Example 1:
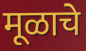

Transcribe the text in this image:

मूळाचे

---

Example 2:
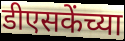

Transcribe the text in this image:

डीएसकेंच्या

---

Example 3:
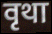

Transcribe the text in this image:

वृथा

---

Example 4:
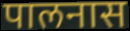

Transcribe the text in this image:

पालनास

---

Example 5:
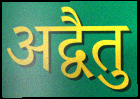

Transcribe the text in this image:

अद्वैतु